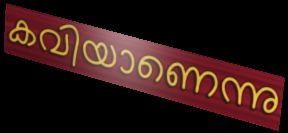
കവിയാണെന്നു